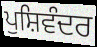
ਪੁਸ਼ਿਵੰਦਰ